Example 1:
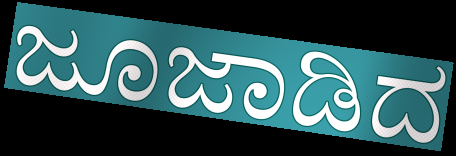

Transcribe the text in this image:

ಜೂಜಾಡಿದ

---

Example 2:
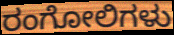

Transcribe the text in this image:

ರಂಗೋಲಿಗಳು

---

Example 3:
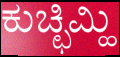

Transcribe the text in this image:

ಕುಚ್ಛಿಮ್ಹಿ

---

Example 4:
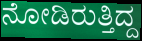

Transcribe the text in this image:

ನೋಡಿರುತ್ತಿದ್ದ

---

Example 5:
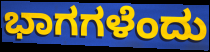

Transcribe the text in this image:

ಭಾಗಗಳೆಂದು